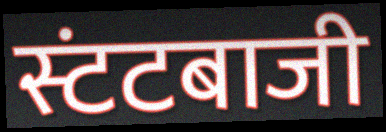
स्टंटबाजी